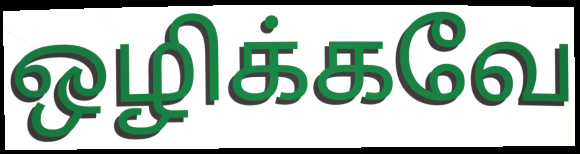
ஒழிக்கவே